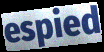
espied